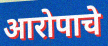
आरोपाचे